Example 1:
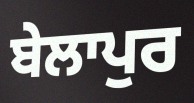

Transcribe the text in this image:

ਬੇਲਾਪੁਰ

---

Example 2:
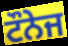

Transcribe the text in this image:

ਟੌਨੇਜ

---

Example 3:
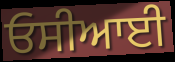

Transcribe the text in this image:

ਓਸੀਆਈ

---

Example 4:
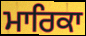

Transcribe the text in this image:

ਮਾਰਿਕਾ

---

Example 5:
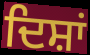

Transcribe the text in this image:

ਦਿਸ਼ਾਂ